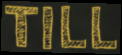
TILL